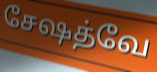
சேஷத்வே